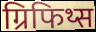
ग्रिफिथ्स